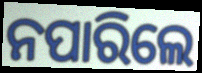
ନପାରିଲେ